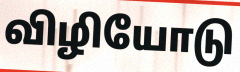
விழியோடு